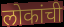
लोकांची